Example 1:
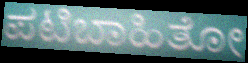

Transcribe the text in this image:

ಪಟಿಬಾಹಿತೋ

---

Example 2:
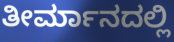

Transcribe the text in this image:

ತೀರ್ಮಾನದಲ್ಲಿ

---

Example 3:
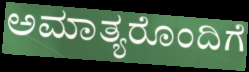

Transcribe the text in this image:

ಅಮಾತ್ಯರೊಂದಿಗೆ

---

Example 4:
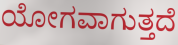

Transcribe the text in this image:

ಯೋಗವಾಗುತ್ತದೆ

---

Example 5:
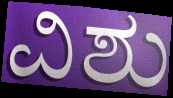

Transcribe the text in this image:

ವಿಶು